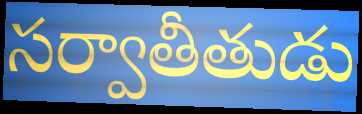
సర్వాతీతుడు